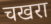
चखरा